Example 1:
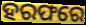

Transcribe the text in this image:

ହରଫରେ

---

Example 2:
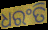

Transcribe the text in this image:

ଧରଂତି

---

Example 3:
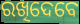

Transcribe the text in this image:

ରଖିଦେବେ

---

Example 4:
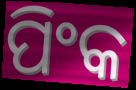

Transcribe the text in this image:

ପିଂକ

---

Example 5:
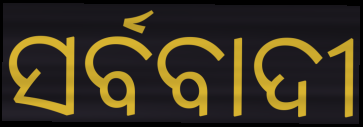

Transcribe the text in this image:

ସର୍ବବାଦୀ